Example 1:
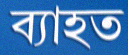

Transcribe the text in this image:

ব্যাহত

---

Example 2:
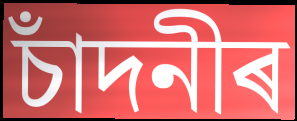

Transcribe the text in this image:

চাঁদনীৰ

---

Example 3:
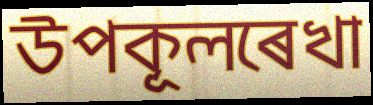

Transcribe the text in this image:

উপকূলৰেখা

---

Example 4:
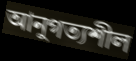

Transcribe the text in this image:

আনুগত্যশীল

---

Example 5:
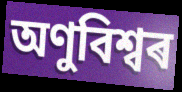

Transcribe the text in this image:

অণুবিশ্বৰ